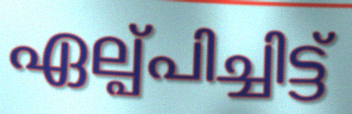
ഏല്പ്പിച്ചിട്ട്